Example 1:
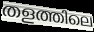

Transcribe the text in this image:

തളത്തിലെ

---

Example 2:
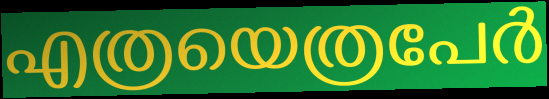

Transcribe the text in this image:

എത്രയെത്രപേർ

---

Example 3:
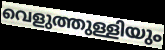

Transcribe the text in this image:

വെളുത്തുള്ളിയും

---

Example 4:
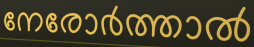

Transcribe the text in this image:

നേരോർത്താൽ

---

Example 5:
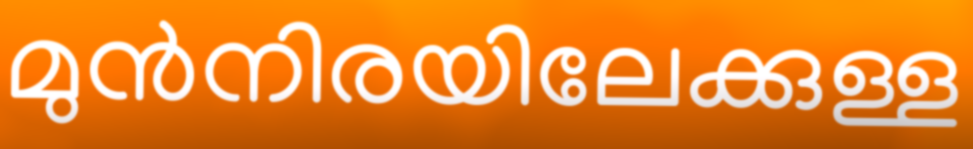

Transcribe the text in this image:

മുൻനിരയിലേക്കുള്ള